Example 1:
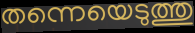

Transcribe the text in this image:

തന്നെയെടുത്തു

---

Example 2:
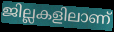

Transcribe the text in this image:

ജില്ലകളിലാണ്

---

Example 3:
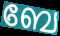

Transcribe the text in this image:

ബേ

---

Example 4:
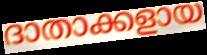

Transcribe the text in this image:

ദാതാക്കളായ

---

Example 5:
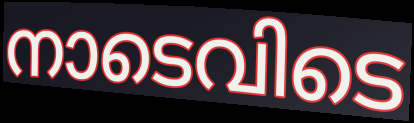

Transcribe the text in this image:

നാടെവിടെ